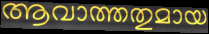
ആവാത്തതുമായ